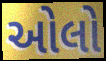
ઓલો